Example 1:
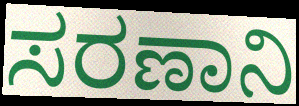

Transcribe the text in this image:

ಸರಣಾನಿ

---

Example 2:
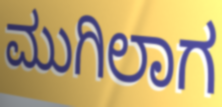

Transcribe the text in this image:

ಮುಗಿಲಾಗ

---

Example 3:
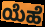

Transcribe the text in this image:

ಯೆಹೆ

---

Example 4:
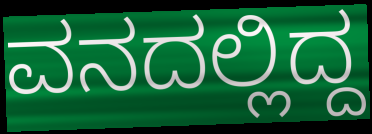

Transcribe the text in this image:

ವನದಲ್ಲಿದ್ದ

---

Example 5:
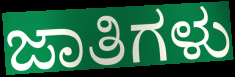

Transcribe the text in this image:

ಜಾತಿಗಳು